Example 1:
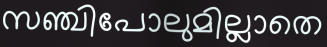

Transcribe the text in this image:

സഞ്ചിപോലുമില്ലാതെ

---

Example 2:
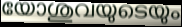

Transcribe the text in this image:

യോശുവയുടെയും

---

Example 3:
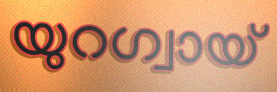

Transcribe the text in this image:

യുറഗ്വായ്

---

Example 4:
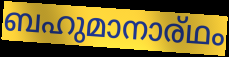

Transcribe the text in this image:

ബഹുമാനാര്ഥം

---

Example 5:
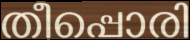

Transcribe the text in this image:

തീപ്പൊരി